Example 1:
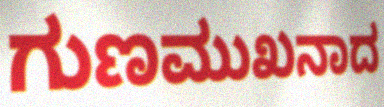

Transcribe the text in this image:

ಗುಣಮುಖನಾದ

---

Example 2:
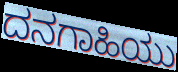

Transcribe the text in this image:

ದನಗಾಹಿಯು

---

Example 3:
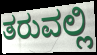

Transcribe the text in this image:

ತರುವಲ್ಲಿ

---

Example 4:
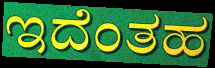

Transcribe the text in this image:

ಇದೆಂತಹ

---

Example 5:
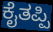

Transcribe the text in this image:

ಕೈತಪ್ಪಿ